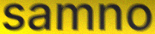
samno